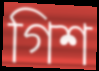
গিশ